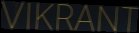
VIKRANT